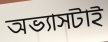
অভ্যাসটাই